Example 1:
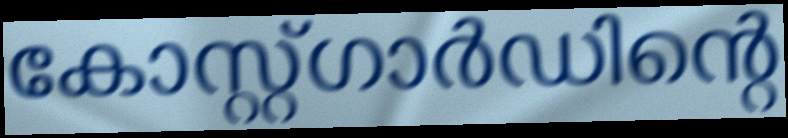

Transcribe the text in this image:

കോസ്റ്റ്ഗാർഡിന്റെ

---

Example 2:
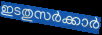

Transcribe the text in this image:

ഇടതുസർക്കാർ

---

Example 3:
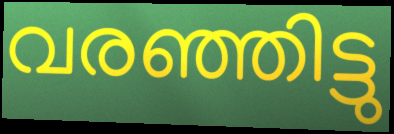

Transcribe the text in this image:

വരഞ്ഞിട്ടു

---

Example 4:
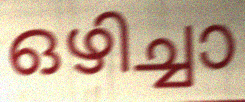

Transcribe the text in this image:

ഒഴിച്ചാ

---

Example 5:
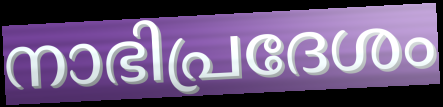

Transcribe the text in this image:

നാഭിപ്രദേശം